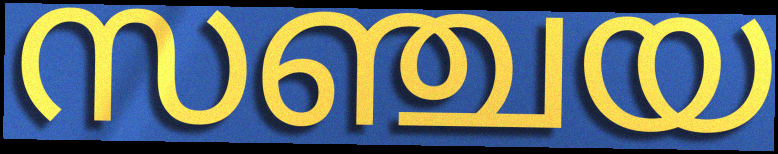
സഞ്ചയ